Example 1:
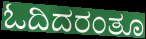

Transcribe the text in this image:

ಓದಿದರಂತೂ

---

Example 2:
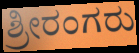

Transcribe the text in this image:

ಶ್ರೀರಂಗರು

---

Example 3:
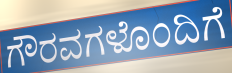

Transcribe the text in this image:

ಗೌರವಗಳೊಂದಿಗೆ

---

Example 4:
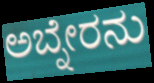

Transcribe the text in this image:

ಅಬ್ನೇರನು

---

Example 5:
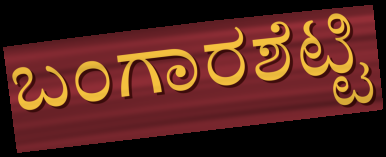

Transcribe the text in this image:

ಬಂಗಾರಶೆಟ್ಟಿ